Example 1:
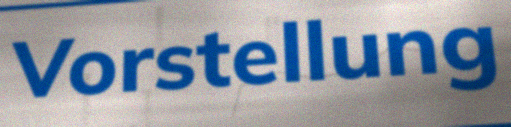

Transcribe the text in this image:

Vorstellung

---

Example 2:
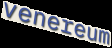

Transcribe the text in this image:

venereum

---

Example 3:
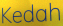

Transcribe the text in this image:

Kedah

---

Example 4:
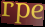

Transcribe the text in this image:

rpe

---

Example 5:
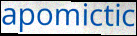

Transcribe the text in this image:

apomictic